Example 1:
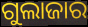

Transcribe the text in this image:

ଗୁଲାଜାର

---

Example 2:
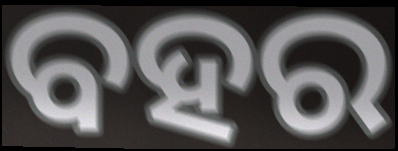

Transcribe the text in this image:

ବହର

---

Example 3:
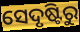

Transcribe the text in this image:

ସେଦୃଷ୍ଟିରୁ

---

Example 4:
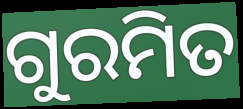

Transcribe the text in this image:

ଗୁରମିତ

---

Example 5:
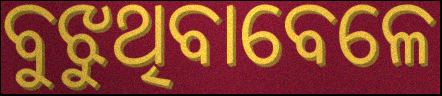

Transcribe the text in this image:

ବୁଝୁଥିବାବେଳେ